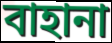
বাহানা